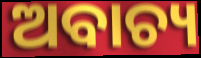
ଅବାଚ୍ୟ